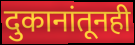
दुकानांतूनही